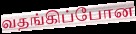
வதங்கிப்போன